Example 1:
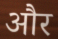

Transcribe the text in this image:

और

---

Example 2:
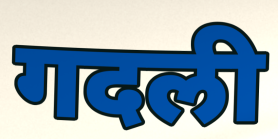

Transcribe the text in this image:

गदली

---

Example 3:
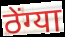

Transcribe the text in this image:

ठेंग्या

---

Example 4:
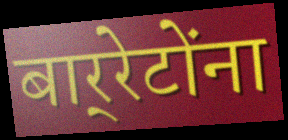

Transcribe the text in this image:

बार्रेटोंना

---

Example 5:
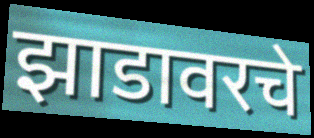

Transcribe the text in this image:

झाडावरचे